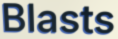
Blasts